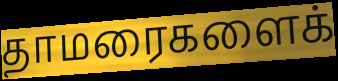
தாமரைகளைக்